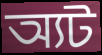
অ্যট